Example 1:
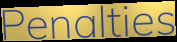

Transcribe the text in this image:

Penalties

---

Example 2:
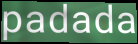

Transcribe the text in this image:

padada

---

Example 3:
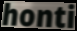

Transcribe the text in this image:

honti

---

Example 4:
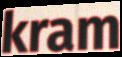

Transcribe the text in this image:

kram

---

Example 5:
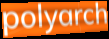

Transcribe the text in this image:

polyarch